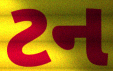
ટન